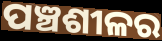
ପଞ୍ଚଶୀଳର